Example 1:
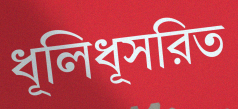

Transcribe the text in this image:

ধূলিধূসরিত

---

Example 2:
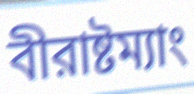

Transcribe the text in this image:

বীরাষ্টম্যাং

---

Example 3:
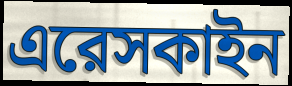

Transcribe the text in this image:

এরেসকাইন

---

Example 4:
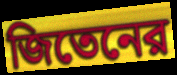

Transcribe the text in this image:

জিতেনের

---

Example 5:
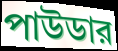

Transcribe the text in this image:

পাউডার